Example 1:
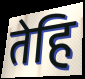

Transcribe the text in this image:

तेहि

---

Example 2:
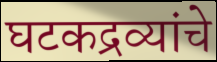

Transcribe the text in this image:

घटकद्रव्यांचे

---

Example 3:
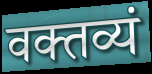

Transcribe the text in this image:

वक्तव्यं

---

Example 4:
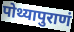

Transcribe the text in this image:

पोथ्यापुराणं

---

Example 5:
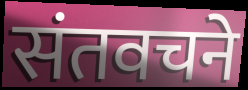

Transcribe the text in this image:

संतवचने